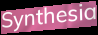
Synthesia